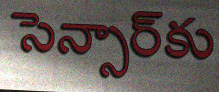
సెన్సార్‌కు